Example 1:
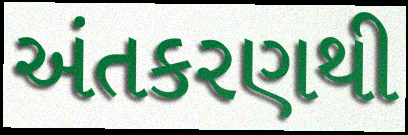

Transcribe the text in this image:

અંતકરણથી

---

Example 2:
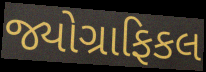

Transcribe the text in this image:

જ્યોગ્રાફિકલ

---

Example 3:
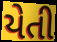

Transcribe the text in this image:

યેતી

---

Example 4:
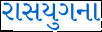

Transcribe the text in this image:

રાસયુગના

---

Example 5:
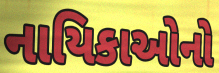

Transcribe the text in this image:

નાયિકાઓનો